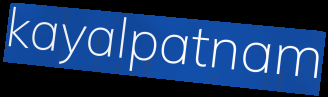
kayalpatnam